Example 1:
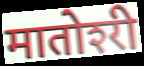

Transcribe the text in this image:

मातोश्री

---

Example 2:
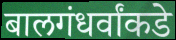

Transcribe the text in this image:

बालगंधर्वांकडे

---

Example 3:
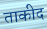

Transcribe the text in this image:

ताकीद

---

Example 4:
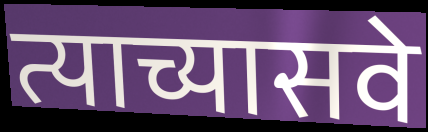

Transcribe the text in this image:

त्याच्यासवे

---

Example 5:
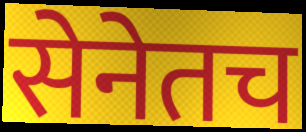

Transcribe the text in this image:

सेनेतच